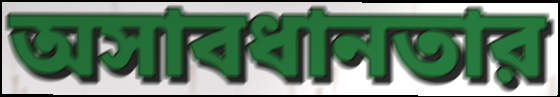
অসাবধানতার